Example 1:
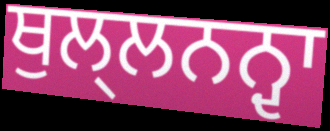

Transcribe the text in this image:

ਥੁਲ੍ਲਨਨ੍ਦਾ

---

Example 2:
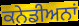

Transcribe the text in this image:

ਕਨੇਡੀਅਨਾਂ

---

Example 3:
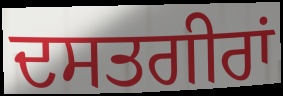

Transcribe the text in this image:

ਦਸਤਗੀਰਾਂ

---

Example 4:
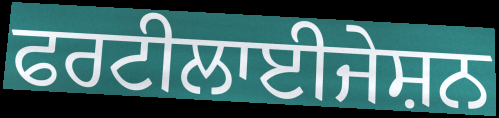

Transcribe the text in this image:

ਫਰਟੀਲਾਈਜੇਸ਼ਨ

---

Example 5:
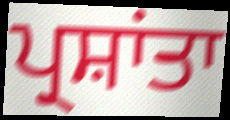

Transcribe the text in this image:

ਪ੍ਰਸ਼ਾਂਤਾ